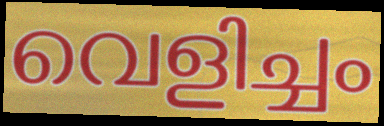
വെളിച്ചം